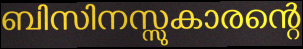
ബിസിനസ്സുകാരന്റെ